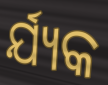
ର୍ଯ୍ୟକ